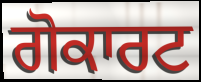
ਗੋਕਾਰਟ